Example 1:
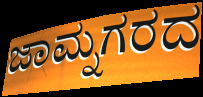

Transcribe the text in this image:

ಜಾಮ್ನಗರದ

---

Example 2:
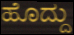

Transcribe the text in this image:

ಹೊದ್ದು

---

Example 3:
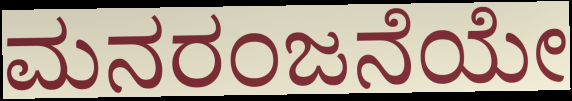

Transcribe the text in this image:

ಮನರಂಜನೆಯೇ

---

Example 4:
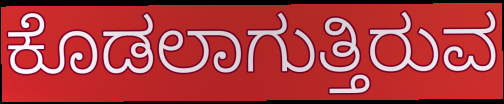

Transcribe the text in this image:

ಕೊಡಲಾಗುತ್ತಿರುವ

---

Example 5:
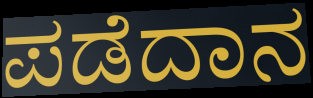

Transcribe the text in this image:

ಪಡೆದಾನ